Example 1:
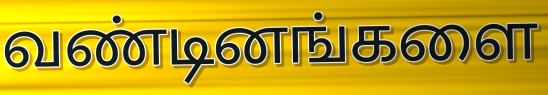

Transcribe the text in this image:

வண்டினங்களை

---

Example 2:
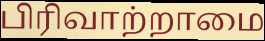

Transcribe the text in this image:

பிரிவாற்றாமை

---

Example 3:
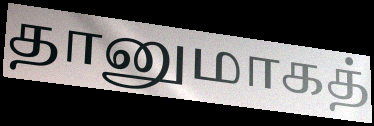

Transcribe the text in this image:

தானுமாகத்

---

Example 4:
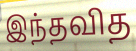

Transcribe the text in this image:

இந்தவித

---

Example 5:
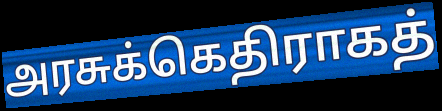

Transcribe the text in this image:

அரசுக்கெதிராகத்